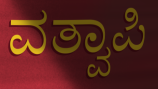
ವತ್ವಾಪಿ